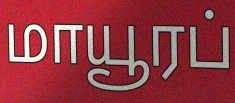
மாயூரப்